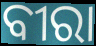
ବୀରା